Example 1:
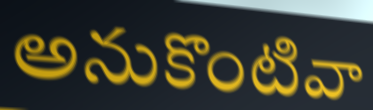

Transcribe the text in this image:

అనుకొంటివా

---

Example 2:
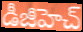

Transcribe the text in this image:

డీజీహెచ్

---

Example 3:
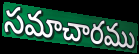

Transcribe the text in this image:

సమాచారము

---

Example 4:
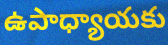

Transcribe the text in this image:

ఉపాధ్యాయకు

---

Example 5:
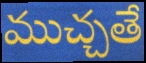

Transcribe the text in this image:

ముచ్చతే